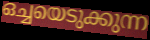
ഒച്ചയെടുക്കുന്ന